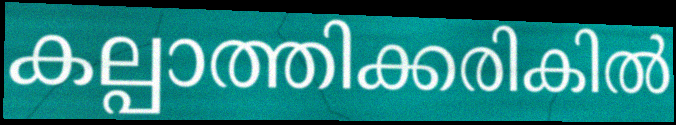
കല്പാത്തിക്കരികിൽ